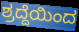
ಶ್ರದ್ದೆಯಿಂದ